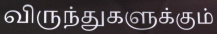
விருந்துகளுக்கும்